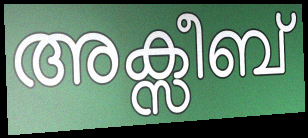
അക്സീബ്